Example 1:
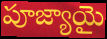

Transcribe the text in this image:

పూజ్యాయై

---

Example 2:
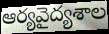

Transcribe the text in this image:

ఆర్యవైద్యశాల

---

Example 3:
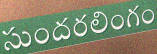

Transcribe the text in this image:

సుందరలింగం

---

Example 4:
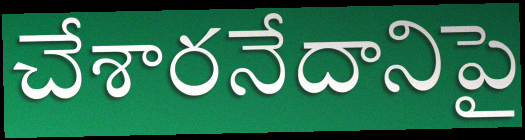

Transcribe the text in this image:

చేశారనేదానిపై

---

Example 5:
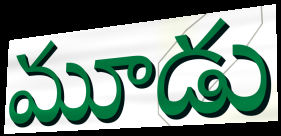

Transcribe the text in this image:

మూడు